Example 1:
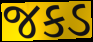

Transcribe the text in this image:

જકડ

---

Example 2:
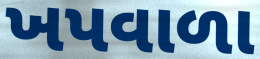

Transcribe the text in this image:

ખપવાળા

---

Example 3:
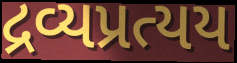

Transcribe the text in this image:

દ્રવ્યપ્રત્યય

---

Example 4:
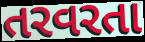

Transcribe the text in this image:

તરવરતા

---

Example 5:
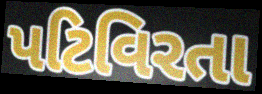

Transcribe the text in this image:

પટિવિરતા